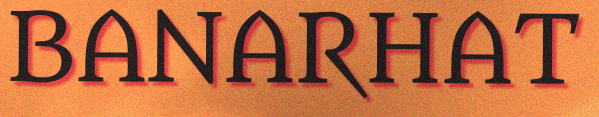
BANARHAT